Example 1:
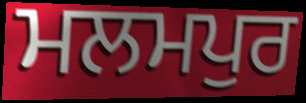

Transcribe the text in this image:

ਮਲਮਪੁਰ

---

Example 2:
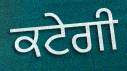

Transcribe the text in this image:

ਕਟੇਗੀ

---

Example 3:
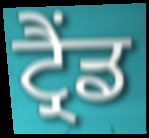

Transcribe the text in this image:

ਟ੍ਰੈਂਡ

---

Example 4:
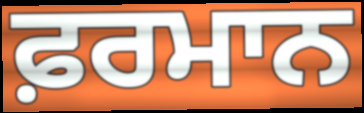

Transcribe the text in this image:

ਫ਼ਰਮਾਨ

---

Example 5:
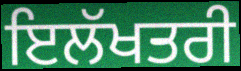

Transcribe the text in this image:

ਇਲੱਖਤਰੀ